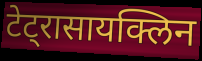
टेट्रासायक्लिन